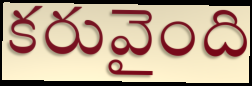
కరువైంది